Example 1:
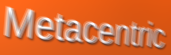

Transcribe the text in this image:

Metacentric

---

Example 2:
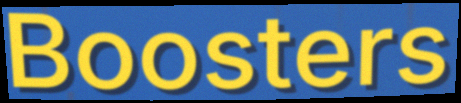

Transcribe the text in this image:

Boosters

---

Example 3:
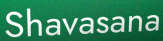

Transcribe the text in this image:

Shavasana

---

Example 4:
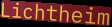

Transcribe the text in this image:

Lichtheim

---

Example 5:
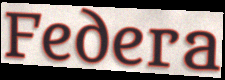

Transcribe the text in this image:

Federa